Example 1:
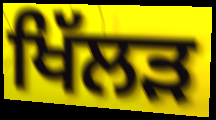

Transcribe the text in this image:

ਖਿੱਲੜ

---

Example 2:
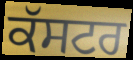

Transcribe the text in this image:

ਕੱਸਟਰ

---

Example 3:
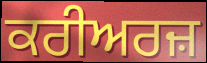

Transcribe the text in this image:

ਕਰੀਅਰਜ਼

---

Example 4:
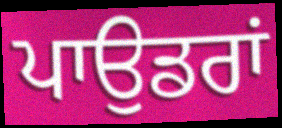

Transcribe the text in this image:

ਪਾਉਡਰਾਂ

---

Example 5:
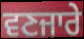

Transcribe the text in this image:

ਵਣਜਾਰੇ